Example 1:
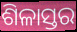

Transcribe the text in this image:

ଶିଳାସ୍ତର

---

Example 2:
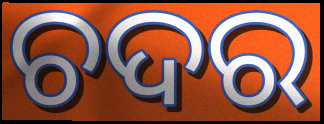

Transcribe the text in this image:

ଚଦର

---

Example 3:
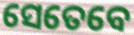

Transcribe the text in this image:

ସେତେବେ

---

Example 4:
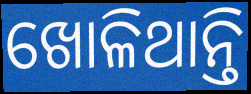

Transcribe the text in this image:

ଖୋଳିଥାନ୍ତି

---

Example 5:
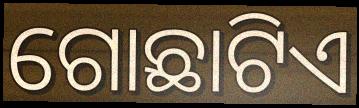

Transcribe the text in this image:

ଗୋଛାଟିଏ